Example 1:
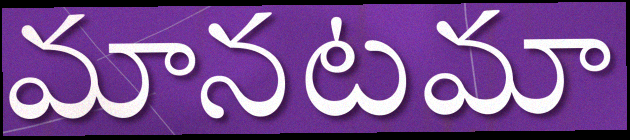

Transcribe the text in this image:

మానటమా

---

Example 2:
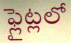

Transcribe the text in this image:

ఫ్లైట్లలో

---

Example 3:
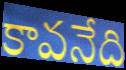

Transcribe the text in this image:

కావనేది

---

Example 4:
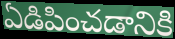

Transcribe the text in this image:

ఏడిపించడానికి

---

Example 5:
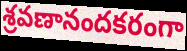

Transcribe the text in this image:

శ్రవణానందకరంగా